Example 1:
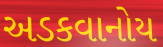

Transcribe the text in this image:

અડકવાનોય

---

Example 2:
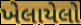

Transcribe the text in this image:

ખેલાયેલો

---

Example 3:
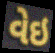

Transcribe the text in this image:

વેઇ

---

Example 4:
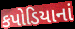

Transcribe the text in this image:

કપોડિયાનાં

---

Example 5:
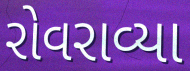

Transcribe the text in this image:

રોવરાવ્યા